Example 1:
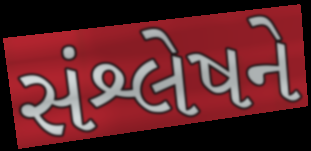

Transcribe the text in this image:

સંશ્લેષને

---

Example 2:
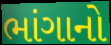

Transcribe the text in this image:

ભાંગાનો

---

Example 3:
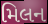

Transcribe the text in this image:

મિલન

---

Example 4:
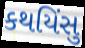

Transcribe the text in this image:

કથયિંસુ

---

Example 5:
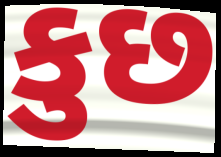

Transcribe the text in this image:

કુછ